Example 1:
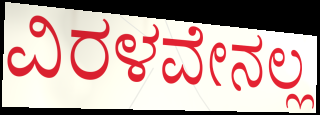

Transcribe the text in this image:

ವಿರಳವೇನಲ್ಲ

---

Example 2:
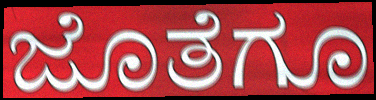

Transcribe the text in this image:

ಜೊತೆಗೂ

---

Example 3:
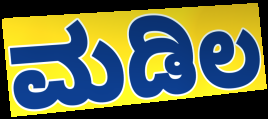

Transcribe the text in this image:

ಮಡಿಲ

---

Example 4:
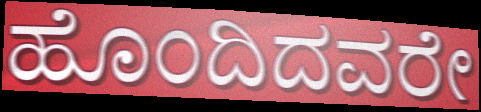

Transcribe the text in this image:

ಹೊಂದಿದವರೇ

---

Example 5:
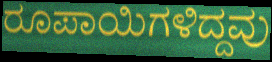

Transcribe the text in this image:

ರೂಪಾಯಿಗಳಿದ್ದವು